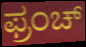
ಫ್ರಂಚ್